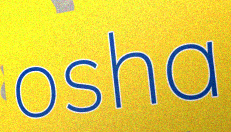
osha